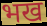
भख